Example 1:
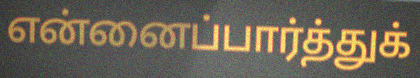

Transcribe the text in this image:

என்னைப்பார்த்துக்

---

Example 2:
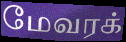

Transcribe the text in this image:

மேவரக்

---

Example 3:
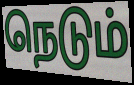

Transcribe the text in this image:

நெடும்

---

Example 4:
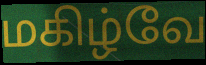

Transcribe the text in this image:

மகிழ்வே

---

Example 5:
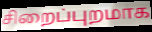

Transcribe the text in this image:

சிறைப்புறமாக